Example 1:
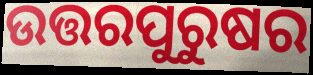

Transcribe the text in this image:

ଉତ୍ତରପୁରୁଷର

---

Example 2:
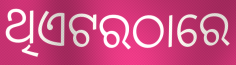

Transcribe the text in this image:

ଥିଏଟରଠାରେ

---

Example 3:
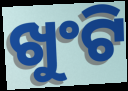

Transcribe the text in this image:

ଖୁଂଟି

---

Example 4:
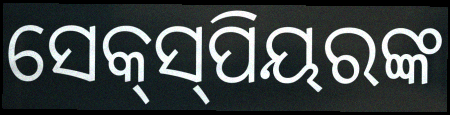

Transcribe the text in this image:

ସେକ୍‌ସ୍‌ପିୟରଙ୍କ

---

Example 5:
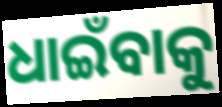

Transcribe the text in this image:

ଧାଇଁବାକୁ